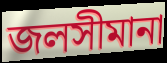
জলসীমানা